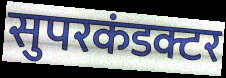
सुपरकंडक्टर